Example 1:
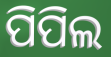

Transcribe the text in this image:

ପିପିଲ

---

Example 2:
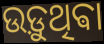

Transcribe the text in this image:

ଉଡ଼ୁଥିଵା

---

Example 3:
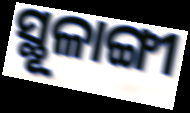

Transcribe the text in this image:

ସ୍ଥୂଳାଙ୍ଗୀ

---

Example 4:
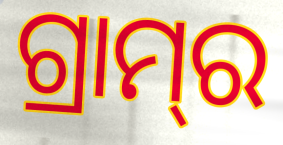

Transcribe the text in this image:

ଗ୍ରାମ୍‌ର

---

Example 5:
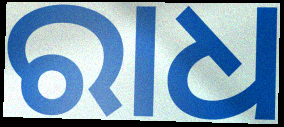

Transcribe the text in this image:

ରାଧ